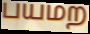
பயமற